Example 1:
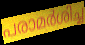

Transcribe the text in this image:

പരാമർശിച്ച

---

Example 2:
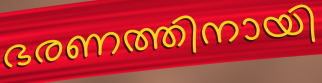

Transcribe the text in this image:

ഭരണത്തിനായി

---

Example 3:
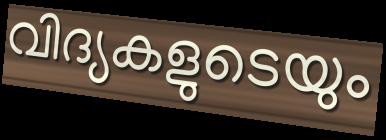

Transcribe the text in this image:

വിദ്യകളുടെയും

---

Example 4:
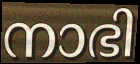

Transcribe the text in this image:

നാഭി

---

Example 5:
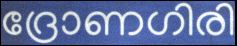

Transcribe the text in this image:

ദ്രോണഗിരി